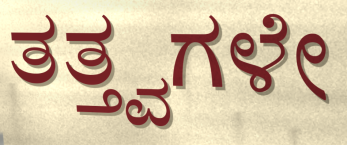
ತತ್ತ್ವಗಳೇ